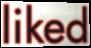
liked